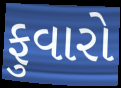
ફુવારો